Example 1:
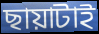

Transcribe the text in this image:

ছায়াটাই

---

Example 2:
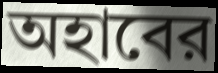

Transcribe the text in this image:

অহাবের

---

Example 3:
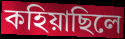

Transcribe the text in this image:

কহিয়াছিলে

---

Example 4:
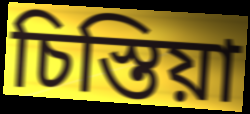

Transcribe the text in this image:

চিস্তিয়া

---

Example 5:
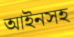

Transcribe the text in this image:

আইনসহ